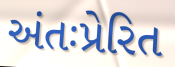
અંતઃપ્રેરિત